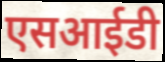
एसआईडी